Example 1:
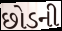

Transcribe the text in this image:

છોડની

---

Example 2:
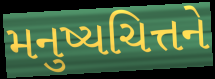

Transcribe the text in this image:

મનુષ્યચિત્તને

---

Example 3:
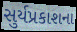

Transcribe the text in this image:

સુર્યપ્રકાશના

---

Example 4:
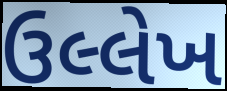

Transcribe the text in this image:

ઉલ્લેખ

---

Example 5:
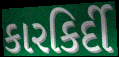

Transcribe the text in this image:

કારકિર્દી